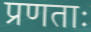
प्रणताः